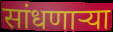
सांधणार्‍या